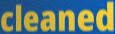
cleaned